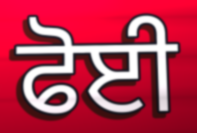
ਫੋਈ